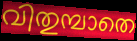
വിതുമ്പാതെ